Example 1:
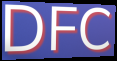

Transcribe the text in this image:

DFC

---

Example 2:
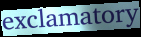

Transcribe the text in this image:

exclamatory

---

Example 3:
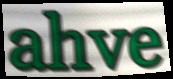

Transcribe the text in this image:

ahve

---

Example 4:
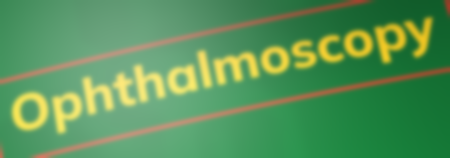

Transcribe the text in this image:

Ophthalmoscopy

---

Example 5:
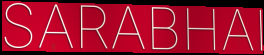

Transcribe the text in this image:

SARABHAI